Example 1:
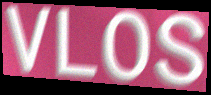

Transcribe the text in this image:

VLOS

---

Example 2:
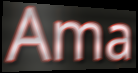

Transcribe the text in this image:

Ama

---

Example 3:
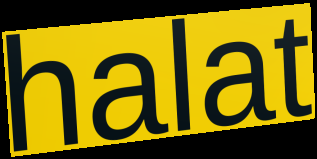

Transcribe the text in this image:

halat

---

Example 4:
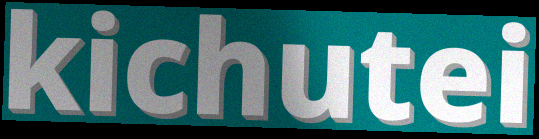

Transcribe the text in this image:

kichutei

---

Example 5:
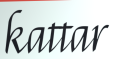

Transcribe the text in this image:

kattar